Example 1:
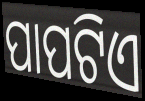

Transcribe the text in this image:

ପାପଟିଏ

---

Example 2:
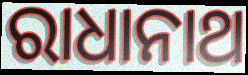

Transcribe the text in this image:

ରାଧାନାଥ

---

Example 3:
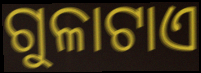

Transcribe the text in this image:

ଗୁଳାଟାଏ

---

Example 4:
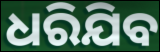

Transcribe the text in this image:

ଧରିଯିବ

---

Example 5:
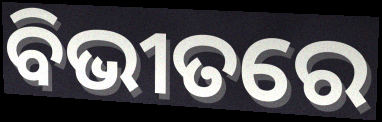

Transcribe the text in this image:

ବିଭୀତରେ